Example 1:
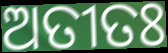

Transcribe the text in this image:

ଅତୀତଃ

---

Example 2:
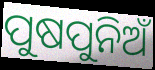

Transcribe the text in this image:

ପୁଷପୁନିଅଁ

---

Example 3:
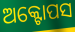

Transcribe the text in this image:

ଅକ୍ଟୋପସ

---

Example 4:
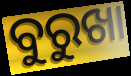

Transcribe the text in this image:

ବୁରୁଖା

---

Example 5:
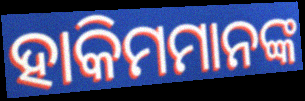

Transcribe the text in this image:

ହାକିମମାନଙ୍କ